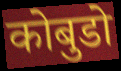
कोबुडो